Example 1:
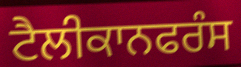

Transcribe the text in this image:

ਟੈਲੀਕਾਨਫਰੰਸ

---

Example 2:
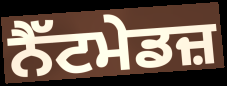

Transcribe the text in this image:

ਨੈੱਟਮੇਡਜ਼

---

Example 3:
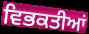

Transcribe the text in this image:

ਵਿਭਕਤੀਆਂ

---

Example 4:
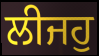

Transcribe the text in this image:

ਲੀਜਹੁ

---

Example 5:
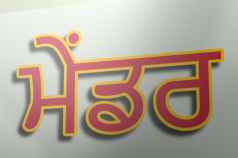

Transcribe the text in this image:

ਮੇਂਡਰ